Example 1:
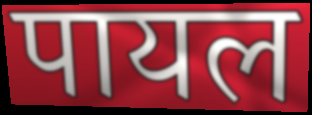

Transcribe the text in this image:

पायल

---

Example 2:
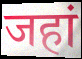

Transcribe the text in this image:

जहां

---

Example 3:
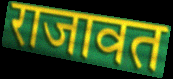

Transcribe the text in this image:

राजावत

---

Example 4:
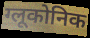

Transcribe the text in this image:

ग्लूकोनिक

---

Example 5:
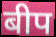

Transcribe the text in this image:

बीप